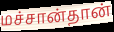
மச்சான்தான்